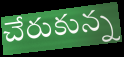
చేరుకున్న